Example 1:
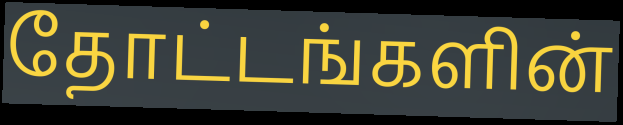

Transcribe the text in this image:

தோட்டங்களின்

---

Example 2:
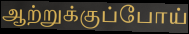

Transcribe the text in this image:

ஆற்றுக்குப்போய்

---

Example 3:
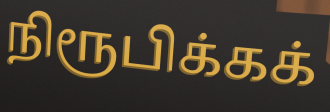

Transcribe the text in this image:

நிரூபிக்கக்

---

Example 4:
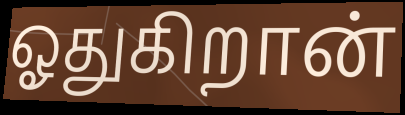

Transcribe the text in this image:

ஓதுகிறான்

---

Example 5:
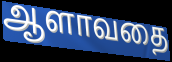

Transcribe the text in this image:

ஆளாவதை